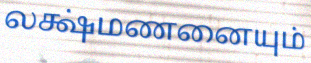
லக்ஷ்மணனையும்